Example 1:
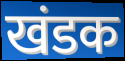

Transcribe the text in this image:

खंडक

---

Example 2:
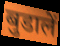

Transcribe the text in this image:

बुडालें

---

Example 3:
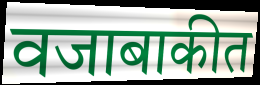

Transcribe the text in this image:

वजाबाकीत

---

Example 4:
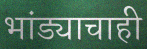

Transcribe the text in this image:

भांड्याचाही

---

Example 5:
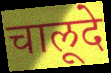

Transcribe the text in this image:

चालूदे